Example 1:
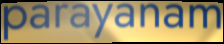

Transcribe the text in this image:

parayanam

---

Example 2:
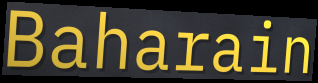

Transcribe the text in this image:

Baharain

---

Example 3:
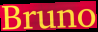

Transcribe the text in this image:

Bruno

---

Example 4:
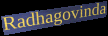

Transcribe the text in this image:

Radhagovinda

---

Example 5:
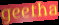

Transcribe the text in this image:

geetha